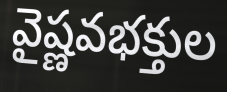
వైష్ణవభక్తుల